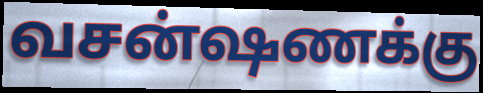
வசன்ஷணக்கு